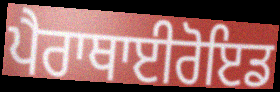
ਪੈਰਾਥਾਈਰੋਇਡ